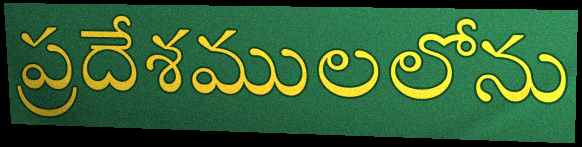
ప్రదేశములలోను